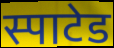
स्पाटेड